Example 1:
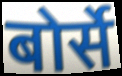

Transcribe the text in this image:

बोर्से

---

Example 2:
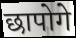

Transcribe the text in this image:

छापोगे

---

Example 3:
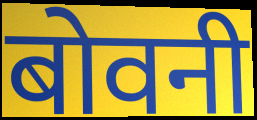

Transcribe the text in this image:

बोवनी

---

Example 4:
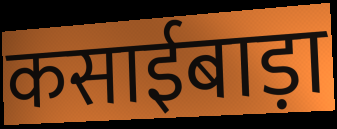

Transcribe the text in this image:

कसाईबाड़ा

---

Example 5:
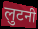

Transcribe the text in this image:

लुटनी